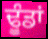
ਢੂੰਡਾਂ